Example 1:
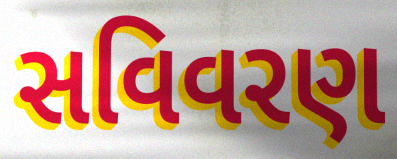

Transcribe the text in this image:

સવિવરણ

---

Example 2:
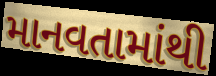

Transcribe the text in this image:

માનવતામાંથી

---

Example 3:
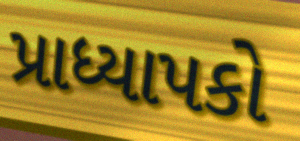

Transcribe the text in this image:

પ્રાધ્યાપકો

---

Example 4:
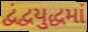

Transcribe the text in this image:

દ્વંદ્વયુદ્ધમાં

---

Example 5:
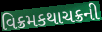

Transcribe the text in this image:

વિક્રમકથાચક્રની